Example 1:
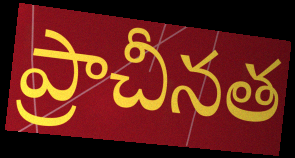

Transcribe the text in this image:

ప్రాచీనత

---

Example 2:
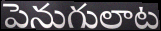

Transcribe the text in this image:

పెనుగులాట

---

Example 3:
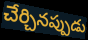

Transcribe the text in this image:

చేర్చినప్పుడు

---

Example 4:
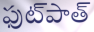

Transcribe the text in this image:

ఫుట్‌పాత్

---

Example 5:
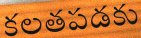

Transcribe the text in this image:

కలతపడకు